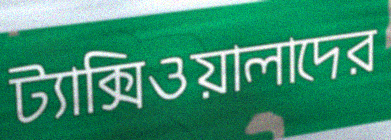
ট্যাক্সিওয়ালাদের